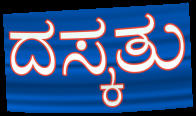
ದಸ್ಕತು